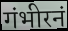
गंभीरनं